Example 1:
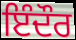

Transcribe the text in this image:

ਇੰਦੌਰ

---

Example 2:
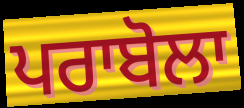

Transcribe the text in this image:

ਪਰਾਬੋਲਾ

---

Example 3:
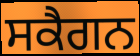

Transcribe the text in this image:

ਸਕੈਗਨ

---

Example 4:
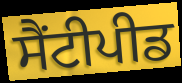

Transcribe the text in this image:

ਸੈਂਟੀਪੀਡ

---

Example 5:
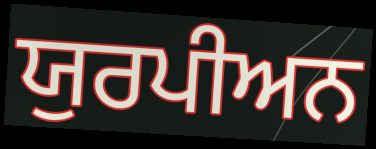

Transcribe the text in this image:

ਯੁਰਪੀਅਨ